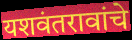
यशवंतरावांचे